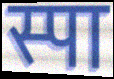
स्पा